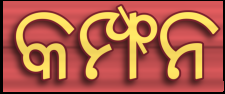
କମ୍ଫନ